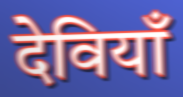
देवियाँ